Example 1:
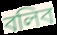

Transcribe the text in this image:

বলিব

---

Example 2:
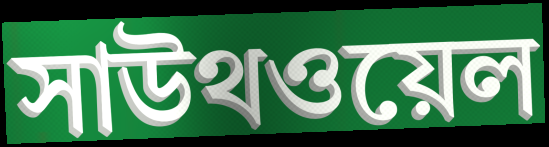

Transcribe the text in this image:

সাউথওয়েল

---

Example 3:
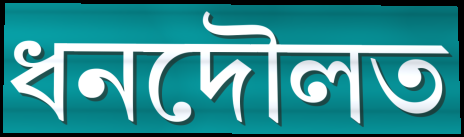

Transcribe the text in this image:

ধনদৌলত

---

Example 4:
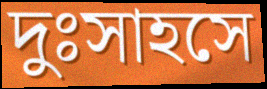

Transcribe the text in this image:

দুঃসাহসে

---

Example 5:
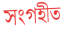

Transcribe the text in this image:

সংগহীত